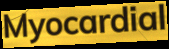
Myocardial